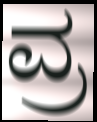
ವ್ರ